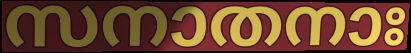
സനാതനാഃ